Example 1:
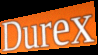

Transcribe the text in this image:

Durex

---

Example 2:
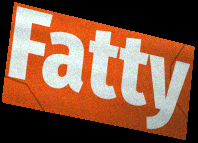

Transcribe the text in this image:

Fatty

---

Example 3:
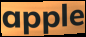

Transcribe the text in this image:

apple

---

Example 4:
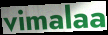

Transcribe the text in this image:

vimalaa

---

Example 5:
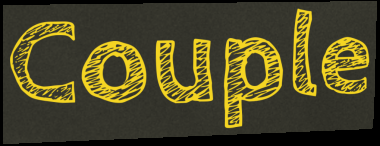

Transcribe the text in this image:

Couple